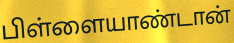
பிள்ளையாண்டான்